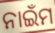
ନାଇଁମ